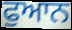
ਫੁਆਨ